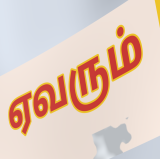
ஏவரும்